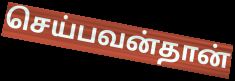
செய்பவன்தான்